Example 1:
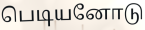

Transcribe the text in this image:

பெடியனோடு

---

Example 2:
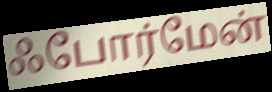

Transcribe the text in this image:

ஃபோர்மேன்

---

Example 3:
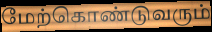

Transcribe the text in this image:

மேற்கொண்டுவரும்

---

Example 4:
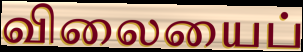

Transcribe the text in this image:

விலையைப்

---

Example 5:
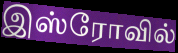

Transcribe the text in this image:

இஸ்ரோவில்